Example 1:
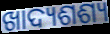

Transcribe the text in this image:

ଖାଦ୍ୟଶଶ୍ୟ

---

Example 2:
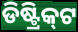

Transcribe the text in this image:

ଡିଷ୍ଟ୍ରିକ୍‌ଟ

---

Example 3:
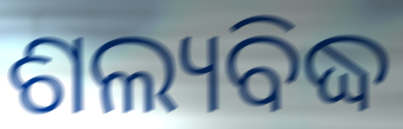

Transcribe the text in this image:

ଶଲ୍ୟବିଦ୍ଧ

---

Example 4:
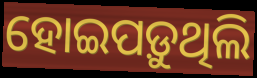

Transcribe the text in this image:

ହୋଇପଡ଼ୁଥିଲି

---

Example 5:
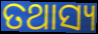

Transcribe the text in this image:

ତଥାସ୍ୟ